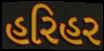
હરિહર